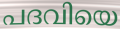
പദവിയെ